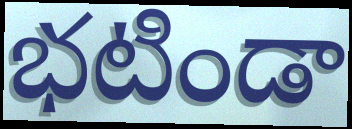
భటిండా